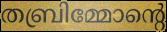
തബ്രിമ്മോന്റെ